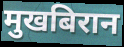
मुखबिरान